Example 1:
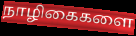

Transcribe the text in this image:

நாழிகைகளை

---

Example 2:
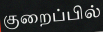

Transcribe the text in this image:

குறைப்பில்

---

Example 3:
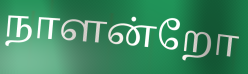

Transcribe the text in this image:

நாளன்றோ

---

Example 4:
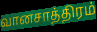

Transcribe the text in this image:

வானசாத்திரம்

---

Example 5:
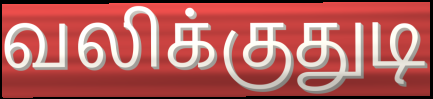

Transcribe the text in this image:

வலிக்குதுடி